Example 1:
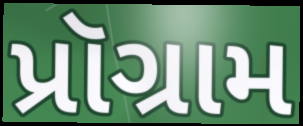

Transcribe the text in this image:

પ્રૉગ્રામ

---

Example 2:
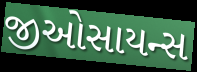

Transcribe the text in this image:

જીઓસાયન્સ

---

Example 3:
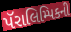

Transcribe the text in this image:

પૅરાલિમ્પિકની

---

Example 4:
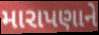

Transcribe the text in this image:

મારાપણાને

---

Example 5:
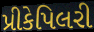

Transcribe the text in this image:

પ્રીકેપિલરી